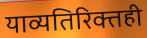
याव्यतिरिक्तही